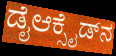
ಡೈಆಕ್ಸೈಡ್‌ನ